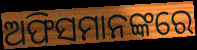
ଅଫିସମାନଙ୍କରେ